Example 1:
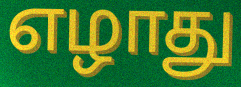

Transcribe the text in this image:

எழாது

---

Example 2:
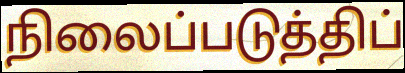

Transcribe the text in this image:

நிலைப்படுத்திப்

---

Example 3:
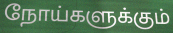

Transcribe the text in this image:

நோய்களுக்கும்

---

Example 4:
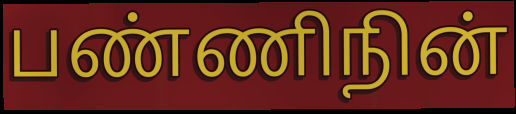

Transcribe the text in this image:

பண்ணிநின்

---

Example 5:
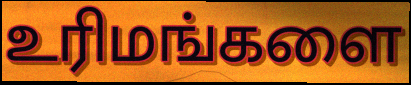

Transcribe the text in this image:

உரிமங்களை